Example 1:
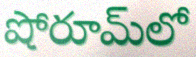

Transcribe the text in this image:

షోరూమ్‌లో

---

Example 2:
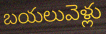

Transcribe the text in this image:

బయలువెళ్లు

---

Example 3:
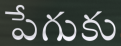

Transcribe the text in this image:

పేగుకు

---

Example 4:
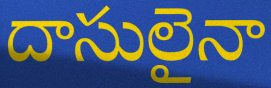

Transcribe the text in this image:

దాసులైనా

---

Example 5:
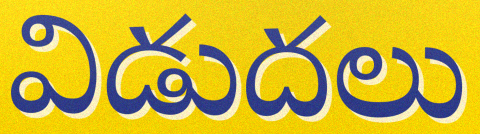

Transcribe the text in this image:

విడుదలు